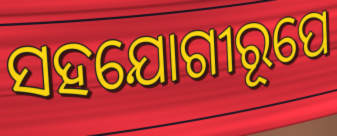
ସହଯୋଗୀରୂପେ